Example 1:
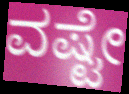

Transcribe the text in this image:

ವಷ್ಟೇ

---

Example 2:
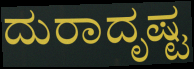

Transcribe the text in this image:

ದುರಾದೃಷ್ಟ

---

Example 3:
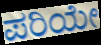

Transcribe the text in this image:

ಪರಿಯೇ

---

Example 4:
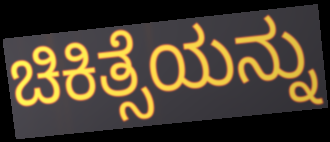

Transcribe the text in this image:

ಚಿಕಿತ್ಸೆಯನ್ನು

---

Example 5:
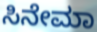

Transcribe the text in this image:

ಸಿನೇಮಾ